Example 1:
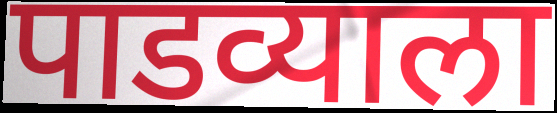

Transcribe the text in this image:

पाडव्याला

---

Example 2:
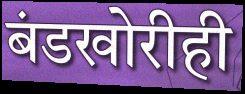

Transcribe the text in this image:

बंडखोरीही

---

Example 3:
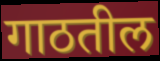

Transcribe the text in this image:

गाठतील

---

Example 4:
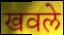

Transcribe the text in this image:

खवले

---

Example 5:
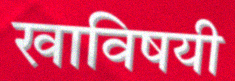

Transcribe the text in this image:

खाविषयी